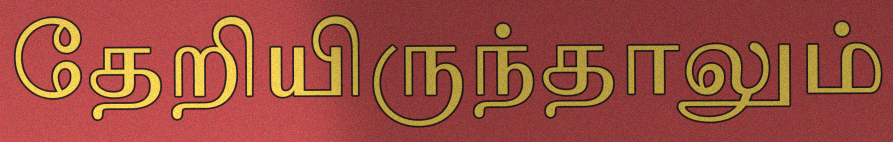
தேறியிருந்தாலும்